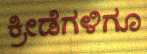
ಕ್ರೀಡೆಗಳಿಗೂ